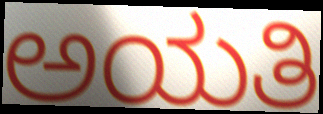
ಅಯತಿ